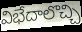
విభేదాలొచ్చి